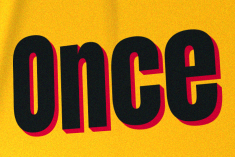
Once